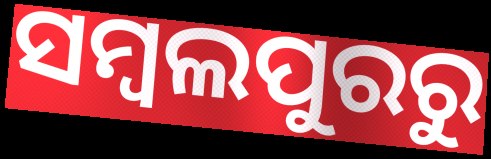
ସମ୍ବଲପୁରରୁ